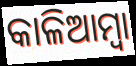
କାଳିଆମ୍ବା